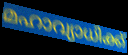
മഹാവ്യാധിക്ക്